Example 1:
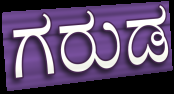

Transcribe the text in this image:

ಗರುಡ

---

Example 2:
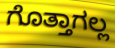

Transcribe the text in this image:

ಗೊತ್ತಾಗಲ್ಲ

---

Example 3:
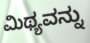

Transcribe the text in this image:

ಮಿಥ್ಯವನ್ನು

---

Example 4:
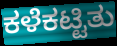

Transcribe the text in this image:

ಕಳೆಕಟ್ಟಿತು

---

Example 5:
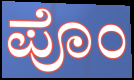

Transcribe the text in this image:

ಪೊಂ